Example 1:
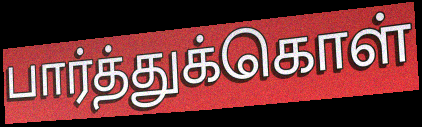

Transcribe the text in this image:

பார்த்துக்கொள்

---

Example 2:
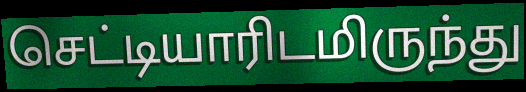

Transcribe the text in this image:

செட்டியாரிடமிருந்து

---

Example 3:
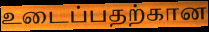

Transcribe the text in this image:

உடைப்பதற்கான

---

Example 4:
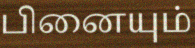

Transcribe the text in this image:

பினையும்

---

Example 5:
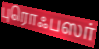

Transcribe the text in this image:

புரொஃபஸர்